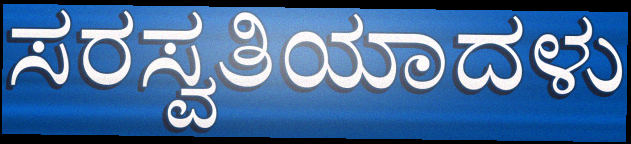
ಸರಸ್ವತಿಯಾದಳು